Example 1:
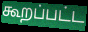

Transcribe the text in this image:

கூறப்பட்ட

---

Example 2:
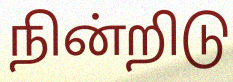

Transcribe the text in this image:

நின்றிடு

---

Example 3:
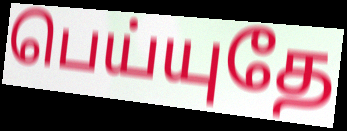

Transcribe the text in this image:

பெய்யுதே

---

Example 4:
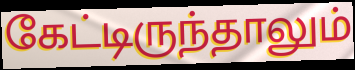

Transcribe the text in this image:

கேட்டிருந்தாலும்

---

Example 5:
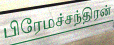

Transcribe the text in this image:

பிரேமச்சந்திரன்